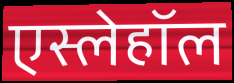
एस्लेहॉल